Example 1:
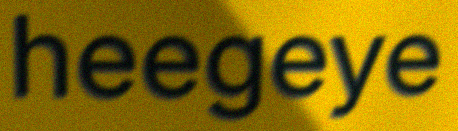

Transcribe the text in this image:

heegeye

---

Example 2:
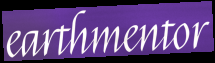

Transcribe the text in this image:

earthmentor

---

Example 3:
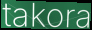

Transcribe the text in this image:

takora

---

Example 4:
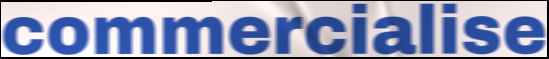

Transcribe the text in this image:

commercialise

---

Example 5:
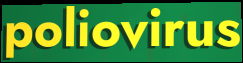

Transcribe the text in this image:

poliovirus